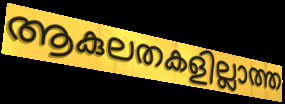
ആകുലതകളില്ലാത്ത